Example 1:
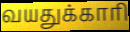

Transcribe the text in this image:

வயதுக்காரி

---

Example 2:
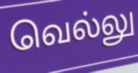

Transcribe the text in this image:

வெல்லு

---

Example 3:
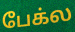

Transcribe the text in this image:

பேக்ல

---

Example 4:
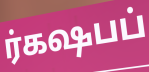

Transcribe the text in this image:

ர்கஷபப்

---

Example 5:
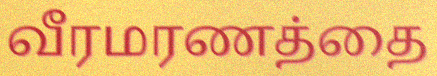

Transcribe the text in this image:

வீரமரணத்தை